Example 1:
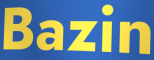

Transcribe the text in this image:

Bazin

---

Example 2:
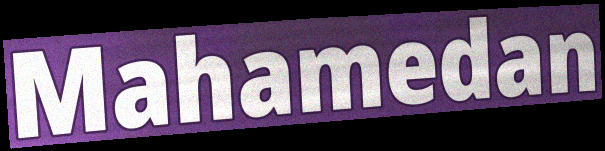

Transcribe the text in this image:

Mahamedan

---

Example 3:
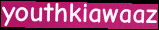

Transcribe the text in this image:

youthkiawaaz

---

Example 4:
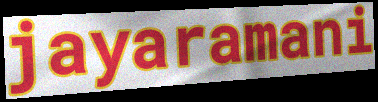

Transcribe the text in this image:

jayaramani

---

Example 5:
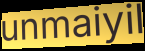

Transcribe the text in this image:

unmaiyil